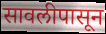
सावलीपासून